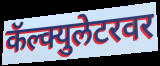
कॅल्क्युलेटरवर